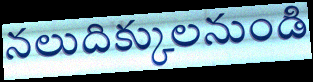
నలుదిక్కులనుండి